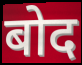
बोद